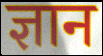
ज्ञान